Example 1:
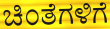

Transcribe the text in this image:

ಚಿಂತೆಗಳಿಗೆ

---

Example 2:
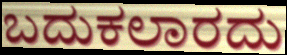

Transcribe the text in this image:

ಬದುಕಲಾರದು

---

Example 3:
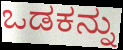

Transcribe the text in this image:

ಒಡಕನ್ನು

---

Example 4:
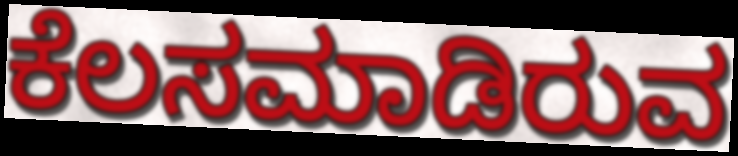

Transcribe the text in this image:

ಕೆಲಸಮಾಡಿರುವ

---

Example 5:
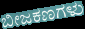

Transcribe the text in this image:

ಬೀಜಕಣಗಳು